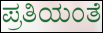
ಪ್ರತಿಯಂತೆ